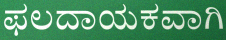
ಫಲದಾಯಕವಾಗಿ